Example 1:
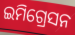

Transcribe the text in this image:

ଇମିଗ୍ରେସନ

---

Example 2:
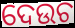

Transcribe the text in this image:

ଦେଉଚ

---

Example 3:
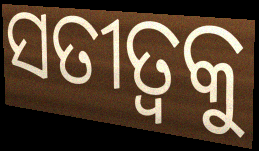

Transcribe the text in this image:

ସତୀତ୍ୱକୁ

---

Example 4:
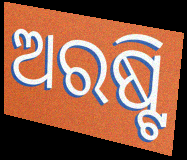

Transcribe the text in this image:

ଅରଷ୍ଟି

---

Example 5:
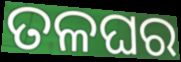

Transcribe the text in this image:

ତଳଘର